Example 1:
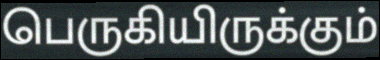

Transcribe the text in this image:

பெருகியிருக்கும்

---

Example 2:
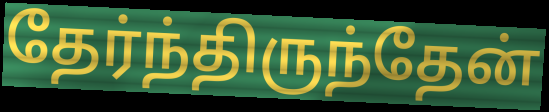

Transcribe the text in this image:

தேர்ந்திருந்தேன்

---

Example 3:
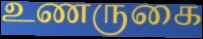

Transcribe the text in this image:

உணருகை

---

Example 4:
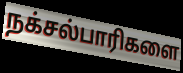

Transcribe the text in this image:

நக்சல்பாரிகளை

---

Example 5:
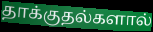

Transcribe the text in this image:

தாக்குதல்களால்